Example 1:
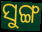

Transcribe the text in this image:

ସୁଙ୍ଗ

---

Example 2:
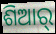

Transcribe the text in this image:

ଶିଆର୍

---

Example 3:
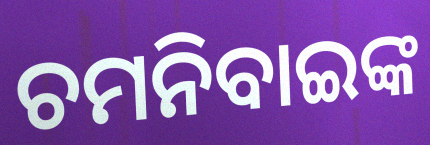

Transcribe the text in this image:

ଚମନିବାଇଙ୍କ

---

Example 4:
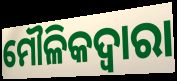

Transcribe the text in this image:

ମୌଳିକଦ୍ଵାରା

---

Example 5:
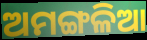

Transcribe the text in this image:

ଅମଙ୍ଗଳିଆ